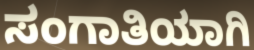
ಸಂಗಾತಿಯಾಗಿ